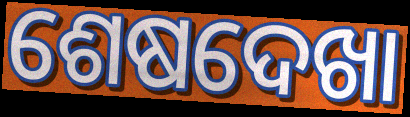
ଶେଷଦେଖା